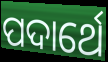
ପଦାର୍ଥେ